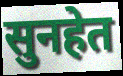
सुनहेत